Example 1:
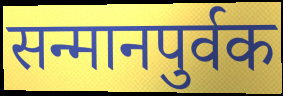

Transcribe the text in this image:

सन्मानपुर्वक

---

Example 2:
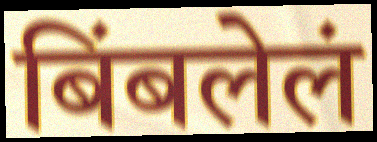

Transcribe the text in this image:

बिंबलेलं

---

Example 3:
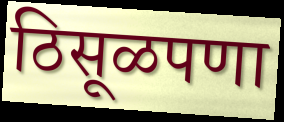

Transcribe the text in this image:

ठिसूळपणा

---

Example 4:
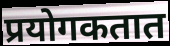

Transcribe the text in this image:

प्रयोगकतात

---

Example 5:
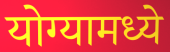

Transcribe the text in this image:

योग्यामध्ये